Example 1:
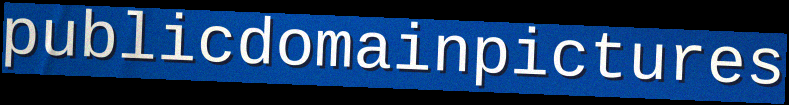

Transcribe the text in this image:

publicdomainpictures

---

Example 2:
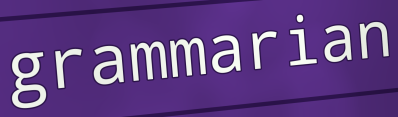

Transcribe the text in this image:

grammarian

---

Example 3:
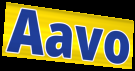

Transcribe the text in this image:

Aavo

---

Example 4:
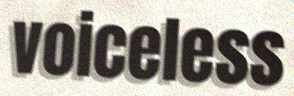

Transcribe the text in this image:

voiceless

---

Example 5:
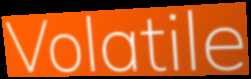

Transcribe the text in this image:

Volatile